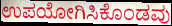
ಉಪಯೋಗಿಸಿಕೊಂಡವು